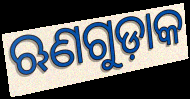
ଋଣଗୁଡ଼ାକ